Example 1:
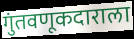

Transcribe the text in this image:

गुंतवणूकदाराला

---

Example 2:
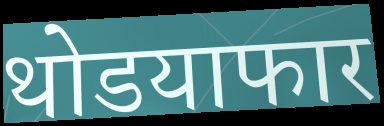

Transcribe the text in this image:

थोडयाफार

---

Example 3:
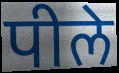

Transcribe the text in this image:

पीले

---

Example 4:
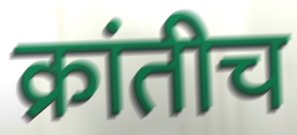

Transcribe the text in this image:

क्रांतीच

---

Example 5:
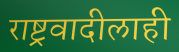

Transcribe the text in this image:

राष्ट्रवादीलाही